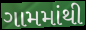
ગામમાંથી